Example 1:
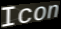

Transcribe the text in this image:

Icon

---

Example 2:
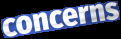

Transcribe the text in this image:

concerns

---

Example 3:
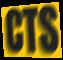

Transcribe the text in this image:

CTS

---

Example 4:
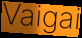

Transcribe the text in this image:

Vaigai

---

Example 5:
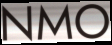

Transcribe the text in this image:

NMO